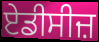
ਏਡੀਸੀਜ਼